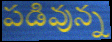
పడివున్న